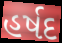
હર્ષદ